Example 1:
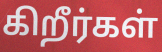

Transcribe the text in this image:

கிறீர்கள்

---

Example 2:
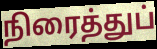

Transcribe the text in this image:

நிரைத்துப்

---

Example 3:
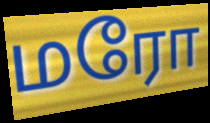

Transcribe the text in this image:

மரோ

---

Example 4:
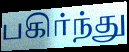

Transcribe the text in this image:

பகிர்ந்து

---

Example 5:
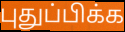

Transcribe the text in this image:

புதுப்பிக்க